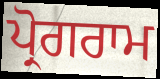
ਪ੍ਰੋਗਰਾਮ